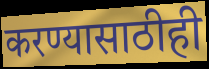
करण्यासाठीही